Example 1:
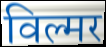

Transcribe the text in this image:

विल्मर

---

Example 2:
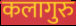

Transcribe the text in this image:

कलागुरु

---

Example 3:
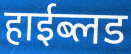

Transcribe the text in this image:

हाईब्लड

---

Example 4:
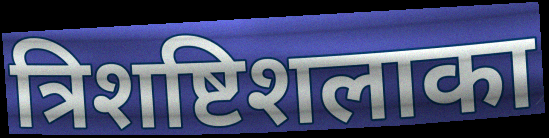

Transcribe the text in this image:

त्रिशष्टिशलाका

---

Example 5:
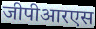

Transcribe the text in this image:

जीपीआरएस